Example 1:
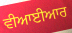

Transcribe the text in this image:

ਵੀਆਈਆਰ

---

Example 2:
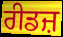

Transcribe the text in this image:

ਰੀਡਜ਼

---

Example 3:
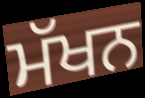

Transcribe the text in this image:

ਮੱਖਨ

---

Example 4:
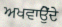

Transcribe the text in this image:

ਅਖਵਾਉੇਂਦੇ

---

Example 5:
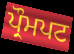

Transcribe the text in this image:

ਪ੍ਰੌਮਪਟ